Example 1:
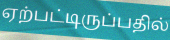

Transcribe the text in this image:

ஏற்பட்டிருப்பதில்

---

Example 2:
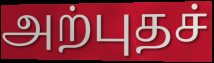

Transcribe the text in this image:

அற்புதச்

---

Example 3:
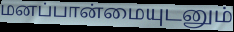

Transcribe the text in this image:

மனப்பான்மையுடனும்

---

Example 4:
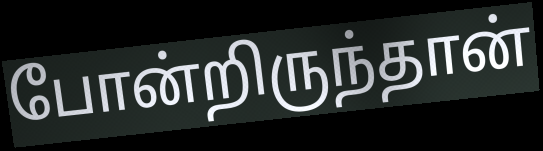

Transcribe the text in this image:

போன்றிருந்தான்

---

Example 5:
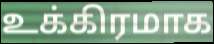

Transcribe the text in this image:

உக்கிரமாக